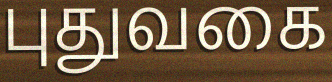
புதுவகை